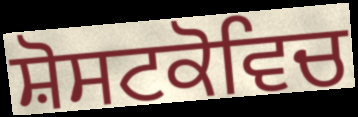
ਸ਼ੋਸਟਕੋਵਿਚ